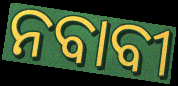
ନବାବୀ